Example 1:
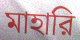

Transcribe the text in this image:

মাহারি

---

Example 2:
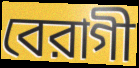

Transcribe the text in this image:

বেরাগী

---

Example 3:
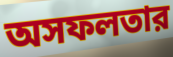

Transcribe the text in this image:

অসফলতার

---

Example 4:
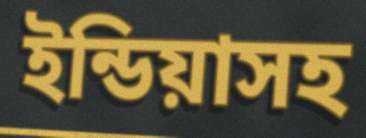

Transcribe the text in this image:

ইন্ডিয়াসহ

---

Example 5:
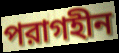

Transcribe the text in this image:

পরাগহীন